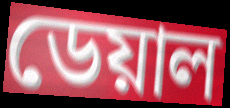
ডেয়াল